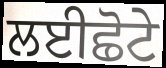
ਲਈਛੋਟੇ